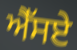
ਐੱਸਏ